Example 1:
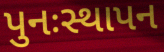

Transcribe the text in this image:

પુનઃસ્થાપન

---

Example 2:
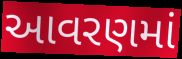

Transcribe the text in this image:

આવરણમાં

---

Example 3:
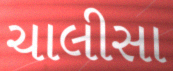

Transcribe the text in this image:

ચાલીસા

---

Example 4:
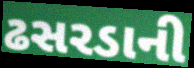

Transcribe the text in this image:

ઢસરડાની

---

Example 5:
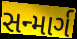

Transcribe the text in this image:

સન્માર્ગ